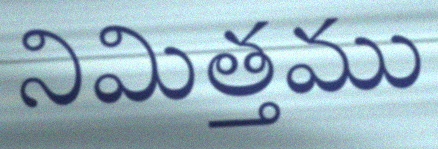
నిమిత్తము